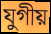
যুগীয়